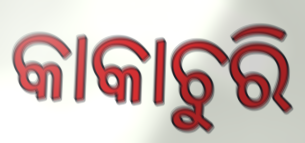
କାକାଚୁରି